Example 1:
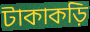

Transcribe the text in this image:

টাকাকড়ি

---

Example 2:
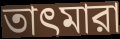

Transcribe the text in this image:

তাৎমারা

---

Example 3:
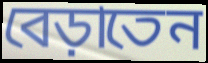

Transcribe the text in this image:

বেড়াতেন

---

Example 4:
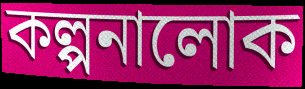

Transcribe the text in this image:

কল্পনালোক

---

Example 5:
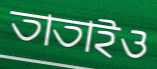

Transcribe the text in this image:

তাতাইও